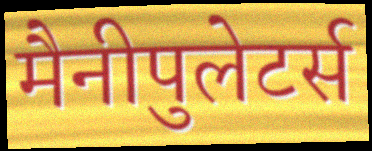
मैनीपुलेटर्स